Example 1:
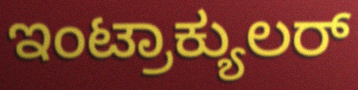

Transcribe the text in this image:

ಇಂಟ್ರಾಕ್ಯುಲರ್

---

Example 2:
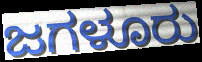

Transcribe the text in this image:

ಜಗಳೂರು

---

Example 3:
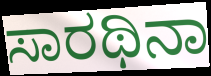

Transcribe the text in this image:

ಸಾರಥಿನಾ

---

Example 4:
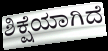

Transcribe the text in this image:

ಶಿಕ್ಷೆಯಾಗಿದೆ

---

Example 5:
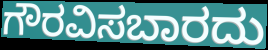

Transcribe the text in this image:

ಗೌರವಿಸಬಾರದು